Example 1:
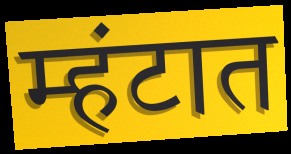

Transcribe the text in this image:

म्हंटात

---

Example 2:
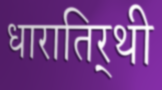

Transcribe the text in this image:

धारातिर्थी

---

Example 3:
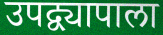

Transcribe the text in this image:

उपद्व्यापाला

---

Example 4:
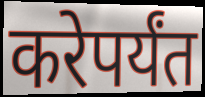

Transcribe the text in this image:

करेपर्यंत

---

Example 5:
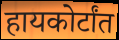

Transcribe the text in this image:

हायकोर्टांत